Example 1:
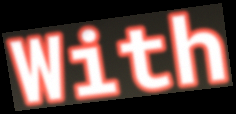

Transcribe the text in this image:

With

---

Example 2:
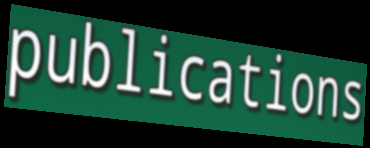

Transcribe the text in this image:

publications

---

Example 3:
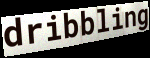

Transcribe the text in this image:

dribbling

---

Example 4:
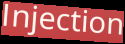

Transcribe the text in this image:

Injection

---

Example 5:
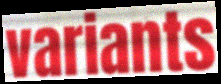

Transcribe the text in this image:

variants